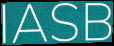
IASB